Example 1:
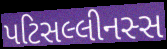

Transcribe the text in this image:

પટિસલ્લીનસ્સ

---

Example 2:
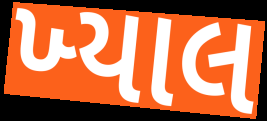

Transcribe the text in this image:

ખ્‍યાલ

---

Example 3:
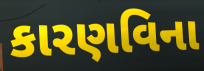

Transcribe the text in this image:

કારણવિના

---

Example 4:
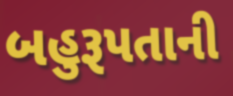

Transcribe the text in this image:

બહુરૂપતાની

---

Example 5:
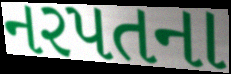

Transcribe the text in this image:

નરપતના